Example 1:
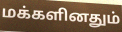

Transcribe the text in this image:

மக்களினதும்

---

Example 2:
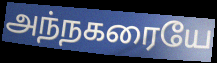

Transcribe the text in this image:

அந்நகரையே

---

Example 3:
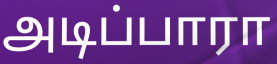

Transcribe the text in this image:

அடிப்பாரா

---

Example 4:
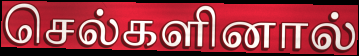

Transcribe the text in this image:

செல்களினால்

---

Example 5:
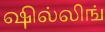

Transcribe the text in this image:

ஷில்லிங்